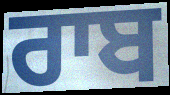
ਰਾਬ